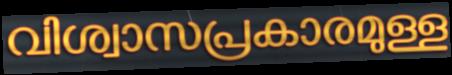
വിശ്വാസപ്രകാരമുള്ള